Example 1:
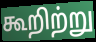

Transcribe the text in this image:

கூறிற்று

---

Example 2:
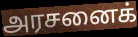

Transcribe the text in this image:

அரசனைக்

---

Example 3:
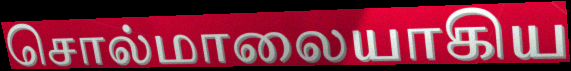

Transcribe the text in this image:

சொல்மாலையாகிய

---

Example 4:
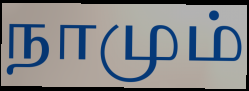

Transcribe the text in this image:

நாமும்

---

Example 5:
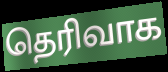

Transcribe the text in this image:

தெரிவாக